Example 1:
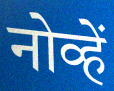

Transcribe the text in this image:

नोव्हें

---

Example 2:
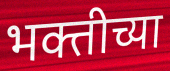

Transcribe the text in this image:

भक्तीच्या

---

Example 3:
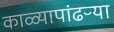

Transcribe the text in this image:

काळ्यापांढऱ्या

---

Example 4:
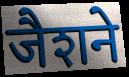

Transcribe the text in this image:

जैशने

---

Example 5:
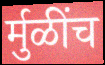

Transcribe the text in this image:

र्मुळींच